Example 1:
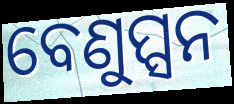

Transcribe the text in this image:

ବେଣୁପ୍ସନ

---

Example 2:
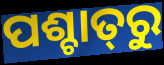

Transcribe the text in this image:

ପଶ୍ଚାତ୍‌ରୁ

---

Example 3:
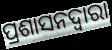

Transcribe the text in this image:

ପ୍ରଶାସନଦ୍ୱାରା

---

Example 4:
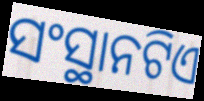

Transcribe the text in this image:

ସଂସ୍ଥାନଟିଏ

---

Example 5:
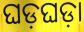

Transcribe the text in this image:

ଘଡ଼ଘଡ଼ା